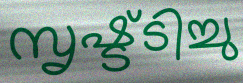
സൃഷ്ട്ടിച്ചു